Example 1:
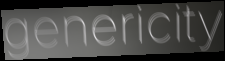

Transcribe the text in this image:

genericity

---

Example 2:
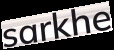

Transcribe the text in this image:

sarkhe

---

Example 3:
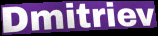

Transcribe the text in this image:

Dmitriev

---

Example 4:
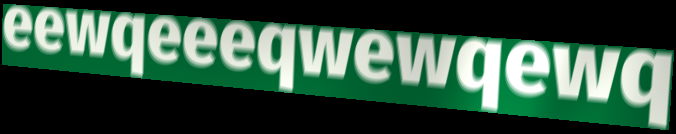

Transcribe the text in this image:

eewqeeeqwewqewq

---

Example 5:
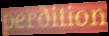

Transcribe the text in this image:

perdition